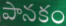
పానకం